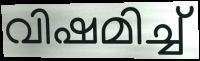
വിഷമിച്ച്